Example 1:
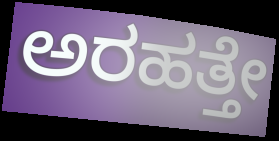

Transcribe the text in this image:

ಅರಹತ್ತೇ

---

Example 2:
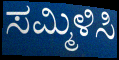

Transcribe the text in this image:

ಸಮ್ಮಿಳಿಸಿ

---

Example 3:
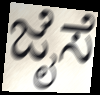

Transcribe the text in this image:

ಜೈಸೆ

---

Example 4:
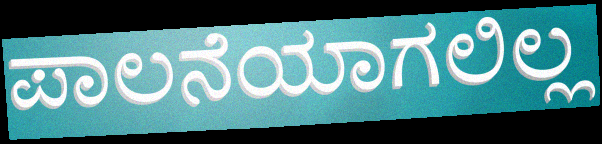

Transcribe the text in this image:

ಪಾಲನೆಯಾಗಲಿಲ್ಲ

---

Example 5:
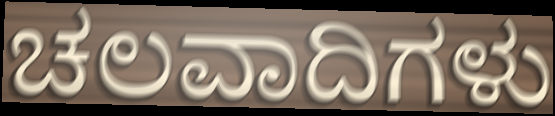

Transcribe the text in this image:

ಚಲವಾದಿಗಳು